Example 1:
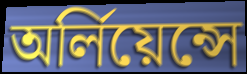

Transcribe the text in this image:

অর্লিয়েন্সে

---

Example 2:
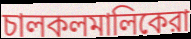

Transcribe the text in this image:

চালকলমালিকেরা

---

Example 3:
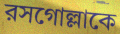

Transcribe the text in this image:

রসগোল্লাকে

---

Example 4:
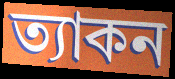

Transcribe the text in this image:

ত্যাকন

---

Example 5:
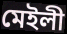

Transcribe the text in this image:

মেইলী